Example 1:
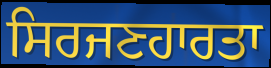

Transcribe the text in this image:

ਸਿਰਜਣਹਾਰਤਾ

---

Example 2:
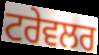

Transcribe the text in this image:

ਟਰੇਵਲਰ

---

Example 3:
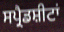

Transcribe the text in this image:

ਸਪ੍ਰੈਡਸ਼ੀਟਾਂ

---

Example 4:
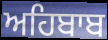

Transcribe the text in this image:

ਅਹਿਬਾਬ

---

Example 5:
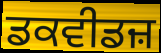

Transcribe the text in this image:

ਡਕਵੀਡਜ਼